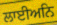
ਲਾਈਅਨਿ